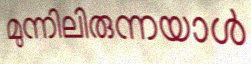
മുന്നിലിരുന്നയാൾ